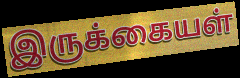
இருக்கையள்